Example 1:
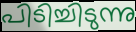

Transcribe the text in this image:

പിടിച്ചിടുന്നു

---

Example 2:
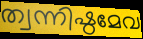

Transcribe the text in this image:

ത്വന്നിഷ്ഠമേവ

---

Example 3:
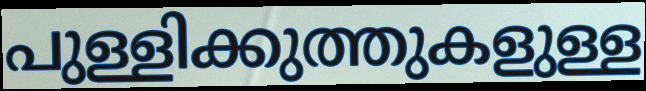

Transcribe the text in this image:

പുള്ളിക്കുത്തുകളുള്ള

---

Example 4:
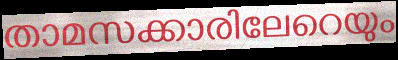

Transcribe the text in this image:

താമസക്കാരിലേറെയും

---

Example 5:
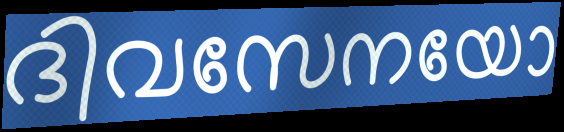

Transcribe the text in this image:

ദിവസേനയോ